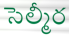
సెల్మీర